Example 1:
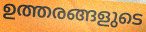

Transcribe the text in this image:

ഉത്തരങ്ങളുടെ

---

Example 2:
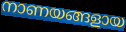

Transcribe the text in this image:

നാണയങ്ങളായ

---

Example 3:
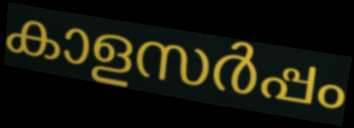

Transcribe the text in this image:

കാളസർപ്പം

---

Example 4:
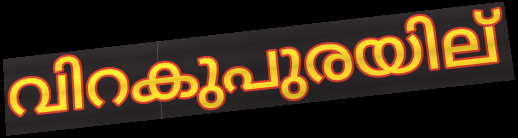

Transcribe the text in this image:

വിറകുപുരയില്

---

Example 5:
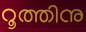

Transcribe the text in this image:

റൂത്തിനു